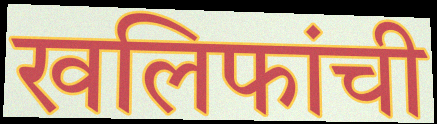
खलिफांची